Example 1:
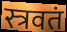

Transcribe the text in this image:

स्त्रवतं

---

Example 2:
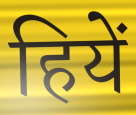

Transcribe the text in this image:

हियें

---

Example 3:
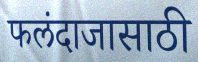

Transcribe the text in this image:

फलंदाजासाठी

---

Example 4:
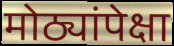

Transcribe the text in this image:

मोठ्यांपेक्षा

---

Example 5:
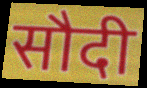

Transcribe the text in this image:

सौदी